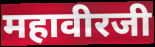
महावीरजी